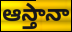
ఆస్తానా